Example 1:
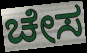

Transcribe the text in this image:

ಚೇಸ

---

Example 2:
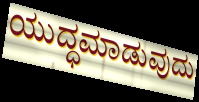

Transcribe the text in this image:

ಯುದ್ಧಮಾಡುವುದು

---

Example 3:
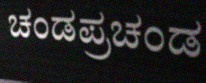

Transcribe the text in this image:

ಚಂಡಪ್ರಚಂಡ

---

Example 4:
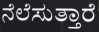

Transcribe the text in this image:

ನೆಲೆಸುತ್ತಾರೆ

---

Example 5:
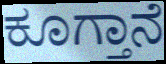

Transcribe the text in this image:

ಕೂಗ್ತಾನೆ